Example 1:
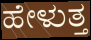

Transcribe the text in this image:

ಹೇಳುತ್ತ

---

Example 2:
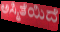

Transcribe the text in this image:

ಅಸ್ಮಿತೆಯಿದೆ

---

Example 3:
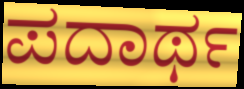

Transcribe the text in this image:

ಪದಾರ್ಥ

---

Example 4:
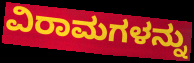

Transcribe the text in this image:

ವಿರಾಮಗಳನ್ನು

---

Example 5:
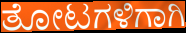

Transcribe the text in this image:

ತೋಟಗಳಿಗಾಗಿ